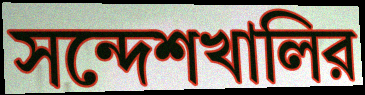
সন্দেশখালির